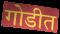
गोडीत